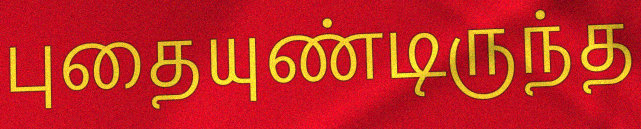
புதையுண்டிருந்த